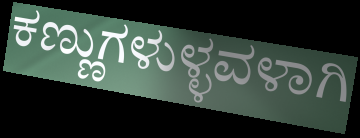
ಕಣ್ಣುಗಳುಳ್ಳವಳಾಗಿ